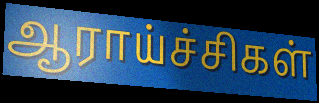
ஆராய்ச்சிகள்